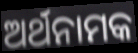
ଅର୍ଥନାମକ